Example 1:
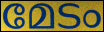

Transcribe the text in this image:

മേടം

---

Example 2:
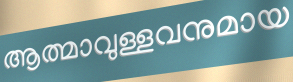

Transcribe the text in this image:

ആത്മാവുള്ളവനുമായ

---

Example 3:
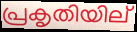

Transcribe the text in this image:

പ്രകൃതിയില്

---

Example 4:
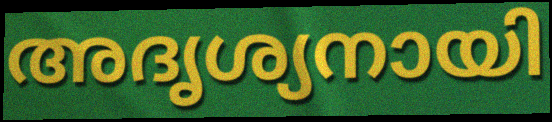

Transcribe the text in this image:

അദൃശ്യനായി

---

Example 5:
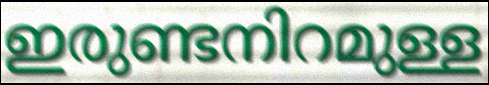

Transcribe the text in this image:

ഇരുണ്ടനിറമുള്ള